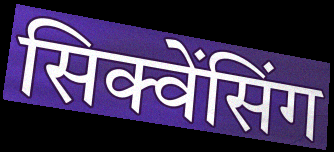
सिक्‍वेंसिंग